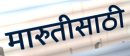
मारुतीसाठी